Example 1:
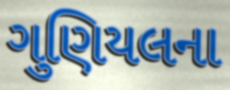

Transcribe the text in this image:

ગુણિયલના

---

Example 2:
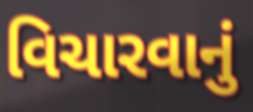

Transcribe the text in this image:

વિચારવાનું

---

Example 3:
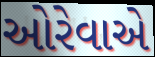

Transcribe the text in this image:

ઓરેવાએ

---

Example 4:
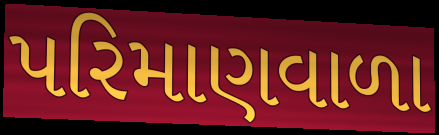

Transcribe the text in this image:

પરિમાણવાળા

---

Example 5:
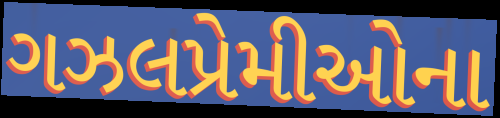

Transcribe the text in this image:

ગઝલપ્રેમીઓના